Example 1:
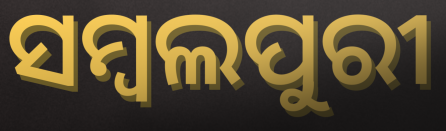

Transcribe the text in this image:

ସମ୍ବଲପୁରୀ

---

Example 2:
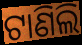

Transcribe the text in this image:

ଟାଣିଲି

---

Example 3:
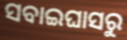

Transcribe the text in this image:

ସବାଇଘାସରୁ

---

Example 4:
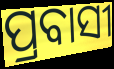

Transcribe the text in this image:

ପ୍ରବାସୀ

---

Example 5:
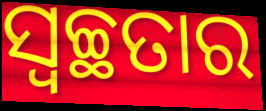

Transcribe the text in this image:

ସ୍ଵଚ୍ଛତାର